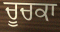
ਚੂਚਕਾ